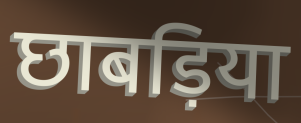
छाबड़िया